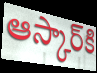
ఆస్కార్‌కి